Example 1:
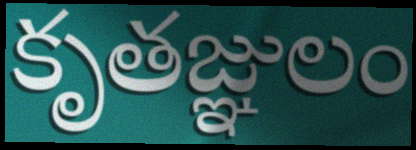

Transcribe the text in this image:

కృతజ్ఞులం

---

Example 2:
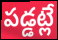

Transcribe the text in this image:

పడ్డట్లే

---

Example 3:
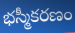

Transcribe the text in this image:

భస్మీకరణం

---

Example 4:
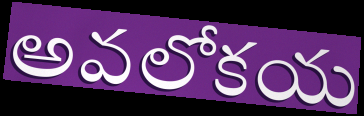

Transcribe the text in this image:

అవలోకయ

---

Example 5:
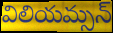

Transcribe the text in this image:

విలియమ్సన్